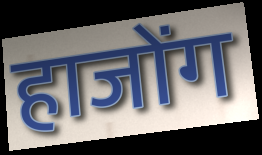
हाजोंग